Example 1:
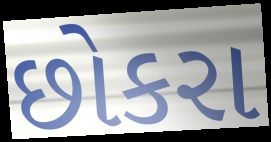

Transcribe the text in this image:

છોકરા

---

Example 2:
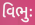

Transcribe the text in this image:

વિભુઃ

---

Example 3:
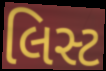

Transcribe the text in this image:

લિસ્ટ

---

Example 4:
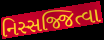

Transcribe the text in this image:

નિસ્સજ્જિત્વા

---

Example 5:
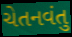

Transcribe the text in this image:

ચેતનવંતુ